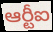
ఆర్టీఐ